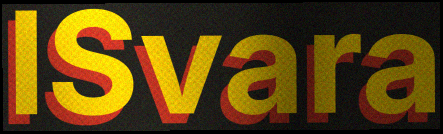
ISvara